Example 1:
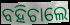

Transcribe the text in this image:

ବହିଚାଲେ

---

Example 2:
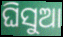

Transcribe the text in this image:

ଘିସୁଆ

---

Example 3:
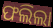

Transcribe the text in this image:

ଫଲିଲା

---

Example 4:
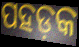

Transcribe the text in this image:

ପହଡ଼କ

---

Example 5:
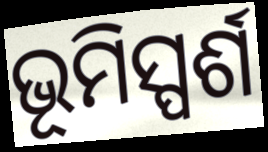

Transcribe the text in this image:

ଭୂମିସ୍ପର୍ଶ